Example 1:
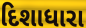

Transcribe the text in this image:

દિશાધારા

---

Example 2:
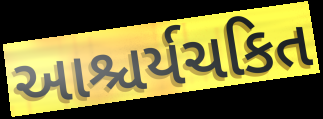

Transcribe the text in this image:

આશ્ચર્યચકિત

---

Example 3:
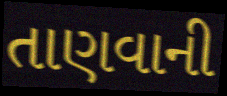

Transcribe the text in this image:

તાણવાની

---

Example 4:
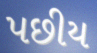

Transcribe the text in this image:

પછીય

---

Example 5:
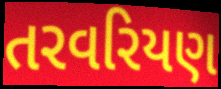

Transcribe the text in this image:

તરવરિયણ